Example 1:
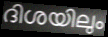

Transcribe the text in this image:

ദിശയിലും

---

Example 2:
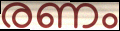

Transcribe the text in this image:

രണം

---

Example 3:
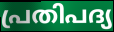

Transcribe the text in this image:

പ്രതിപദ്യ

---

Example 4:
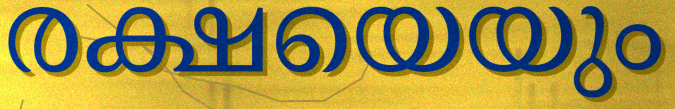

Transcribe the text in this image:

രക്ഷയെയും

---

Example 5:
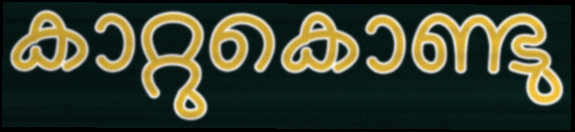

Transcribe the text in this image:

കാറ്റുകൊണ്ടു